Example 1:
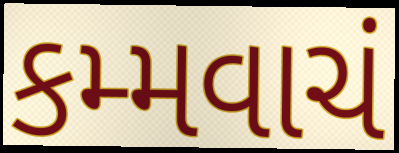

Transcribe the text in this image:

કમ્મવાચં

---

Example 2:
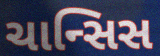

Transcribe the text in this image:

ચાન્સિસ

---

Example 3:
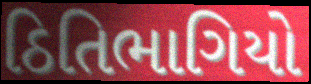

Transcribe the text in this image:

ઠિતિભાગિયો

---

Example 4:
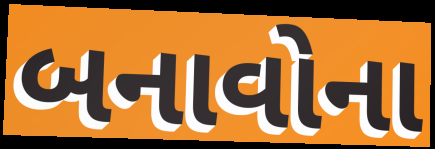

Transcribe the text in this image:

બનાવોના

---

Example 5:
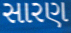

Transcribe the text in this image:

સારણ